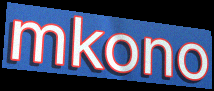
mkono